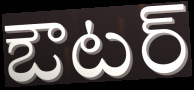
ఔటర్